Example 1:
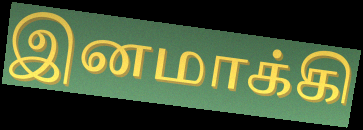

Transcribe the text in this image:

இனமாக்கி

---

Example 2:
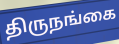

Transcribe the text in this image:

திருநங்கை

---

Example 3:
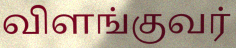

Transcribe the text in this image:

விளங்குவர்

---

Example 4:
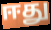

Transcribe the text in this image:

ஈது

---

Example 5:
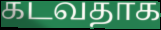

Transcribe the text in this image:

கடவதாக